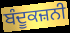
ਬੰਦੂਕਜ਼ਨੀ